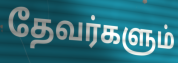
தேவர்களும்